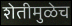
शेतीमुळेच